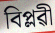
বিপ্লৱী